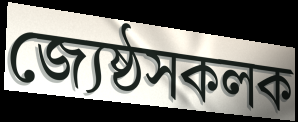
জ্যেষ্ঠসকলক